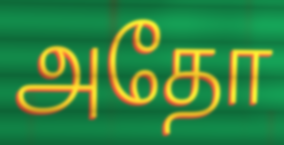
அதோ